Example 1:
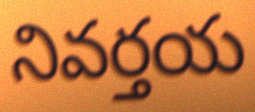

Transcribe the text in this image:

నివర్తయ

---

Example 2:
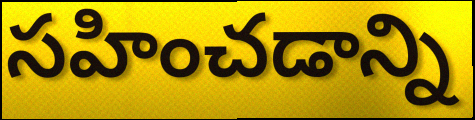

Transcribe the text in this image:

సహించడాన్ని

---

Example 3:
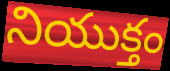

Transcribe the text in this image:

నియుక్తం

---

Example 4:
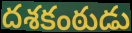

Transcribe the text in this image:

దశకంఠుడు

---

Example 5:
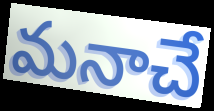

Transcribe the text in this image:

మనాచే